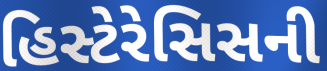
હિસ્ટેરેસિસની